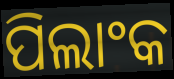
ପିଲାଂକ